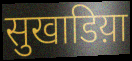
सुखाडिय़ा